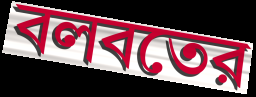
বলবতের